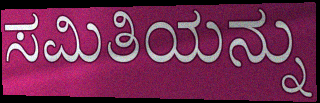
ಸಮಿತಿಯನ್ನು